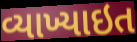
વ્યાખ્યાઇત